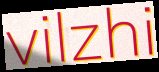
vilzhi